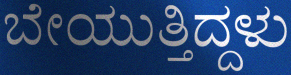
ಬೇಯುತ್ತಿದ್ದಳು